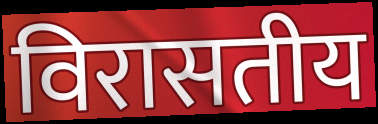
विरासतीय